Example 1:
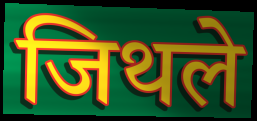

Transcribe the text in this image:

जिथले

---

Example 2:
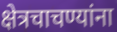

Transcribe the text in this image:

क्षेत्रचाचण्यांना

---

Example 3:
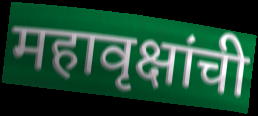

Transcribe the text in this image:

महावृक्षांची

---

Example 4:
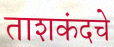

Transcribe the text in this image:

ताशकंदचे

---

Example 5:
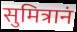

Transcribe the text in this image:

सुमित्रानं